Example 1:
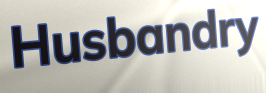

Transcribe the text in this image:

Husbandry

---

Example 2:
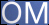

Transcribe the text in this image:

OM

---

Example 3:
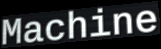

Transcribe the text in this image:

Machine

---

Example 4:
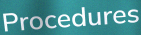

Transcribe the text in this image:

Procedures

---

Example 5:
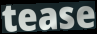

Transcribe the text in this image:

tease